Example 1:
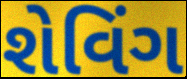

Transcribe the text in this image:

શેવિંગ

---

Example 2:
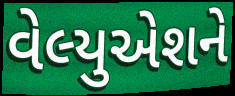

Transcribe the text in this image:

વેલ્યુએશને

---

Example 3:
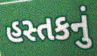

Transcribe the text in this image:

હસ્તકનું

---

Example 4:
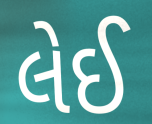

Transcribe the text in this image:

લેઈ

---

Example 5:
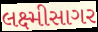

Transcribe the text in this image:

લક્ષ્મીસાગર